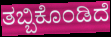
ತಬ್ಬಿಕೊಂಡಿದೆ